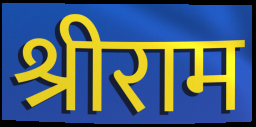
श्रीराम